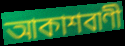
আকাশবাণী